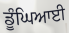
ਡੂੰਘਿਆਈ